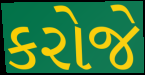
કરોજે